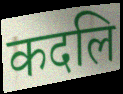
कदलि